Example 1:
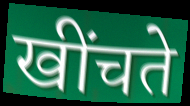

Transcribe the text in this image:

खींचते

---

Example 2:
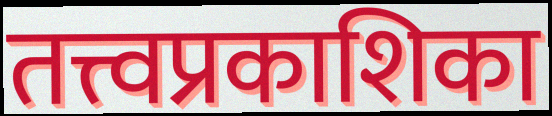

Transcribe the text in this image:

तत्त्वप्रकाशिका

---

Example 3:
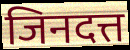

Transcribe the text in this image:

जिनदत्त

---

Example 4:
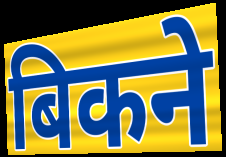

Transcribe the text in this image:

बिकने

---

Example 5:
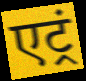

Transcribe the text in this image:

एट्रं